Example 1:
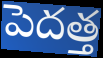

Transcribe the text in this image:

పెదత్త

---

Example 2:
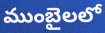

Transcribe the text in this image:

ముంబైలలో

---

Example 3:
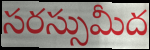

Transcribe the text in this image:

సరస్సుమీద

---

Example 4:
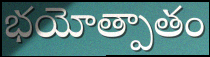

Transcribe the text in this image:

భయోత్పాతం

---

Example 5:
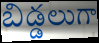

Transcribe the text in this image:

బిడ్డలుగా